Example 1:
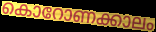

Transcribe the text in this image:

കൊറോണക്കാലം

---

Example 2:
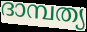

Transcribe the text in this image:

ദാമ്പത്യ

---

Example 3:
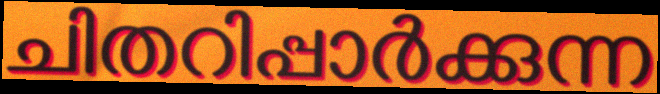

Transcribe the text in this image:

ചിതറിപ്പാർക്കുന്ന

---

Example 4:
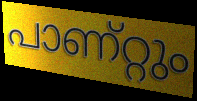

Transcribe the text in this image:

പാണ്റ്റും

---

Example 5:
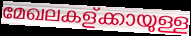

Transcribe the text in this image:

മേഖലകള്ക്കായുള്ള